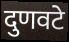
दुणवटे